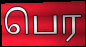
பெர